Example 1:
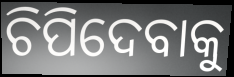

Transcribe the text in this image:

ଚିପିଦେବାକୁ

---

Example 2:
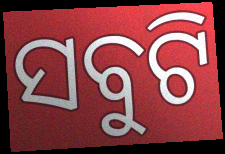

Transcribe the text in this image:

ସବୁଟି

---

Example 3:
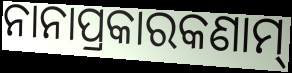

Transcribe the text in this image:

ନାନାପ୍ରକାରକଣାମ୍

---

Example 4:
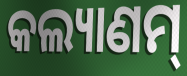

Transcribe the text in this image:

କଲ୍ୟାଣମ୍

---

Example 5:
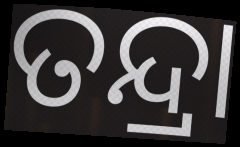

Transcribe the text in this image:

ତନ୍ଦ୍ରା